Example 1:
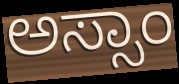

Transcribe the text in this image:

ಅಸ್ಸಾಂ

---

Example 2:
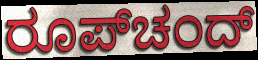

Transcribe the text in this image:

ರೂಪ್‌ಚಂದ್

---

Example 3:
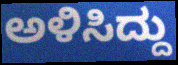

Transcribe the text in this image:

ಅಳಿಸಿದ್ದು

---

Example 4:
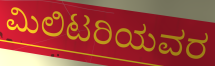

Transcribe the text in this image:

ಮಿಲಿಟರಿಯವರ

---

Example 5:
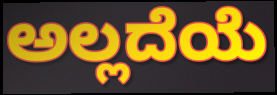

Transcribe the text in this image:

ಅಲ್ಲದೆಯೆ